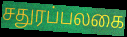
சதுரப்பலகை